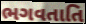
ભગવતાતિ